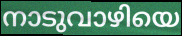
നാടുവാഴിയെ